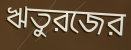
ঋতুরজের